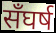
सँघर्ष